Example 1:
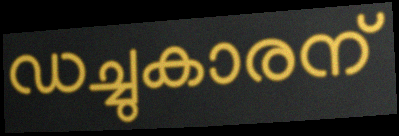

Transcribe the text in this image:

ഡച്ചുകാരന്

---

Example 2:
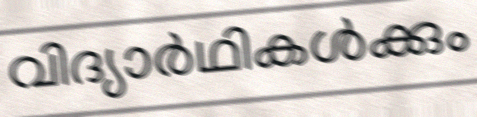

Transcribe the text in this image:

വിദ്യാർഥികൾക്കും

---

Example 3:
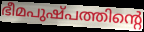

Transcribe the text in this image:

ഭീമപുഷ്പത്തിന്റെ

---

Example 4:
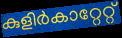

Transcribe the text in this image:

കുളിർകാറ്റേറ്റ്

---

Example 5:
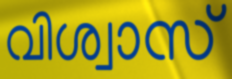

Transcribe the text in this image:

വിശ്വാസ്